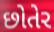
છોતેર